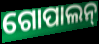
ଗୋପାଲନ୍